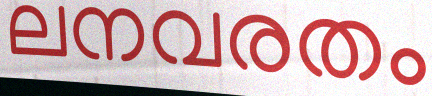
ലനവരതം